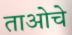
ताओचे